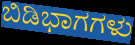
ಬಿಡಿಭಾಗಗಳು